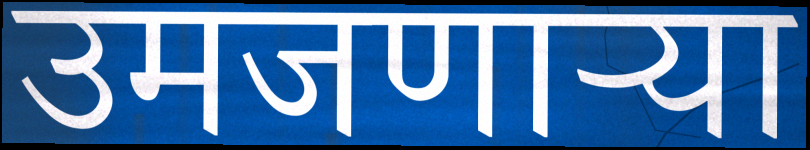
उमजणाऱ्या